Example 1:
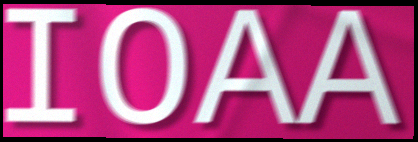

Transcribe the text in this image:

IOAA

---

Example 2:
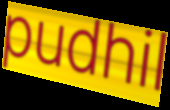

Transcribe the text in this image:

pudhil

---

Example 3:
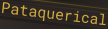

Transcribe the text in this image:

Pataquerical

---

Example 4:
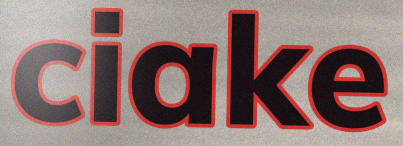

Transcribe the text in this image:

ciake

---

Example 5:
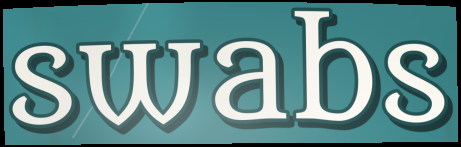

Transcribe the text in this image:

swabs